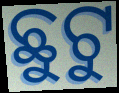
ଛୁଟୁ